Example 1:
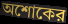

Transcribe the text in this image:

অশোকের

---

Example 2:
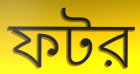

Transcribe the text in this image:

ফটর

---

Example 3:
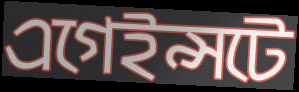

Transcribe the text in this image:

এগেইন্সটে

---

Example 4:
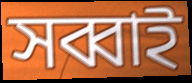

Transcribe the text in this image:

সব্বাই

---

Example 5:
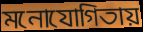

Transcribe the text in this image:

মনোযোগিতায়